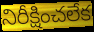
నిరీక్షించలేక